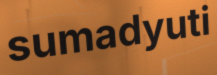
sumadyuti